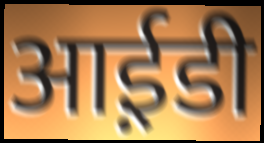
आई़डी